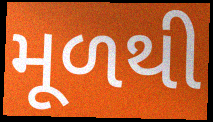
મૂળથી